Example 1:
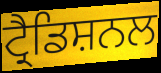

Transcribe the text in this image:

ਟ੍ਰੈਡਿਸ਼ਨਲ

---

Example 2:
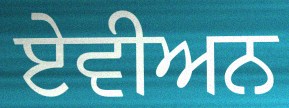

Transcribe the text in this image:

ਏਵੀਅਨ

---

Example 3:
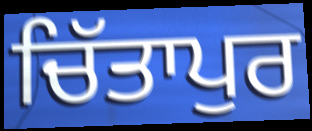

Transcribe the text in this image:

ਚਿੱਤਾਪੁਰ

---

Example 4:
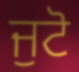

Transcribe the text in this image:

ਜੁਟੋ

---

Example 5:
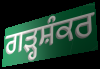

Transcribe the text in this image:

ਗੜ੍ਹਸ਼ੰਕਰ